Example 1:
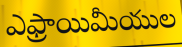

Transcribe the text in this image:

ఎఫ్రాయిమీయుల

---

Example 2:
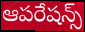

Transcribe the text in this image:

ఆపరేషన్స్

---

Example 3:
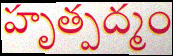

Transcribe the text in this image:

హృత్పద్మం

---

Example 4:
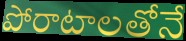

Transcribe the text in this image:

పోరాటాలతోనే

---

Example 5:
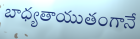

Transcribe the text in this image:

బాధ్యతాయుతంగానే